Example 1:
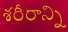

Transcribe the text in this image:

శరీరాన్ని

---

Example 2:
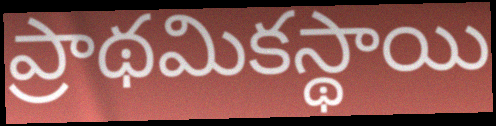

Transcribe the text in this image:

ప్రాథమికస్థాయి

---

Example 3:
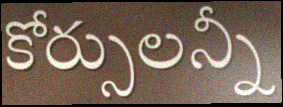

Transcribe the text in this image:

కోర్సులన్నీ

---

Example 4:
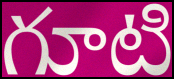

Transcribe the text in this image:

గూటి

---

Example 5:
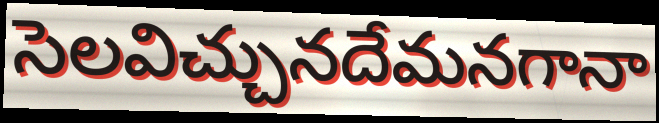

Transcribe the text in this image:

సెలవిచ్చునదేమనగానా